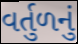
વર્તુળનું